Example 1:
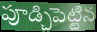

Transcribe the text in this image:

పూడ్చిపెట్టిన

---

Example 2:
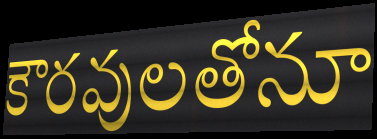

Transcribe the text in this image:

కౌరవులతోనూ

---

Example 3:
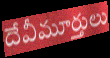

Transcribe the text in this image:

దేవీమూర్తులు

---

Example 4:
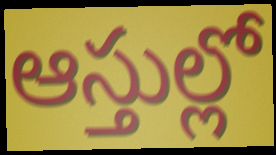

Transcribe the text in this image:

ఆస్తుల్లో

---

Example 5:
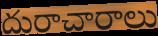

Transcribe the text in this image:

దురాచారాలు